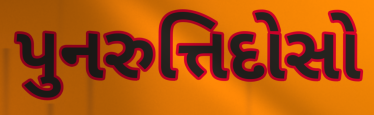
પુનરુત્તિદોસો